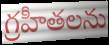
గ్రహీతలను